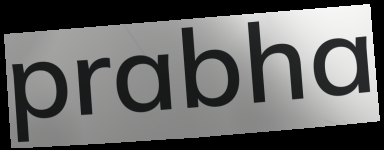
prabha